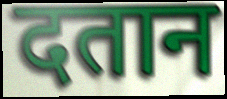
दतान